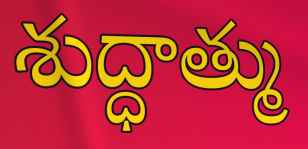
శుద్ధాత్ము